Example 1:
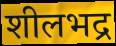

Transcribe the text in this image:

शीलभद्र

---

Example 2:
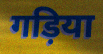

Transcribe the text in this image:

गड़िया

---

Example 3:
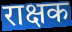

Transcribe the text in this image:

राक्षक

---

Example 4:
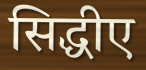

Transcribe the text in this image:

सिद्धीए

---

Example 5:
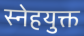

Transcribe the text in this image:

स्नेहयुक्त